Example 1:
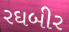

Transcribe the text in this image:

રઘબીર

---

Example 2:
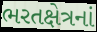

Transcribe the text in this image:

ભરતક્ષેત્રનાં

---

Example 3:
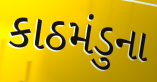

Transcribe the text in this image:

કાઠમંડુના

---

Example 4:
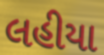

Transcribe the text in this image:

લહીયા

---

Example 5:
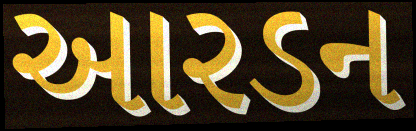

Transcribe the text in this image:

આરડન